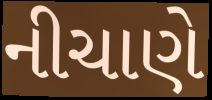
નીચાણે